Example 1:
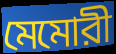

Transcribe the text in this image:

মেমোরী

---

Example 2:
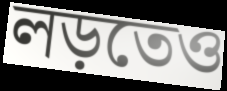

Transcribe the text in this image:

লড়তেও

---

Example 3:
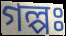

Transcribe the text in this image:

গল্পঃ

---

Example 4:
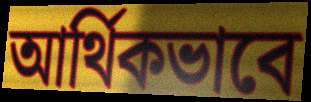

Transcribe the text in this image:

আর্থিকভাবে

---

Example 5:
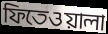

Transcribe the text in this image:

ফিতেওয়ালা